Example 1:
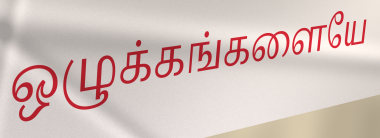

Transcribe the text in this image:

ஒழுக்கங்களையே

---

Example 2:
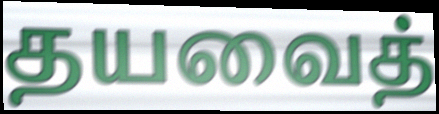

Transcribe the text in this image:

தயவைத்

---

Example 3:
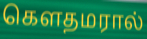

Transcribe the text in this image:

கௌதமரால்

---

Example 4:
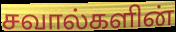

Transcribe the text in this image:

சவால்களின்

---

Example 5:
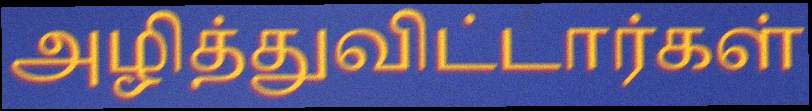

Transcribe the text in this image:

அழித்துவிட்டார்கள்